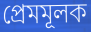
প্রেমমূলক